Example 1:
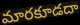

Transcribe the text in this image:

మారకూడదా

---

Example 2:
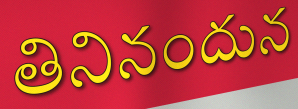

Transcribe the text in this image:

తినినందున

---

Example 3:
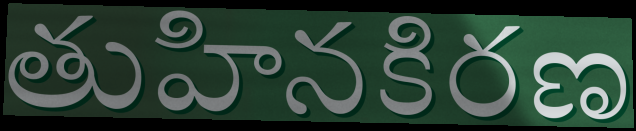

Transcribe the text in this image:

తుహినకిరణ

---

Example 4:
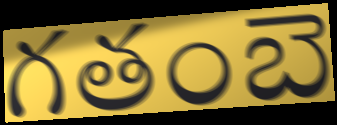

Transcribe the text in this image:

గతంబె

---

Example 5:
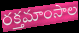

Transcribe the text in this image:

రక్తమాంసాల